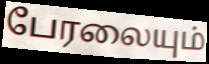
பேரலையும்